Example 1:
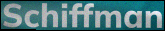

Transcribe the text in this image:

Schiffman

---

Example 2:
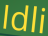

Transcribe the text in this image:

Idli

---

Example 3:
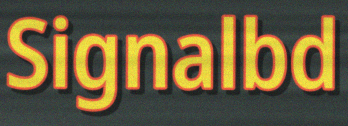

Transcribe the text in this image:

Signalbd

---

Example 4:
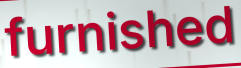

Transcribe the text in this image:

furnished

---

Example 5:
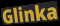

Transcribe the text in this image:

Glinka